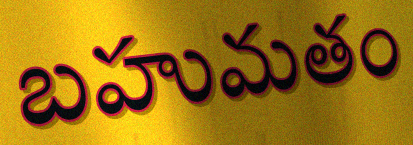
బహుమతం